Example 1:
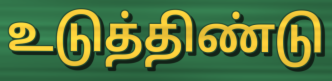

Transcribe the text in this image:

உடுத்திண்டு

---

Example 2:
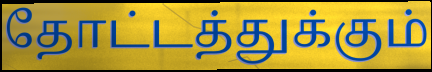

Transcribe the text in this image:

தோட்டத்துக்கும்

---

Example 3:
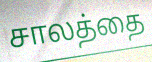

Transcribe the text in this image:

சாலத்தை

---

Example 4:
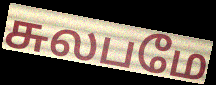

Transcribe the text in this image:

சுலபமே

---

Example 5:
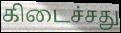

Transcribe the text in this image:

கிடைச்சது